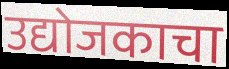
उद्योजकाचा